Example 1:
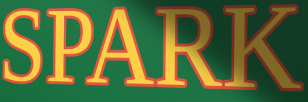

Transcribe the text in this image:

SPARK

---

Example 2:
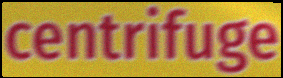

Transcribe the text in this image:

centrifuge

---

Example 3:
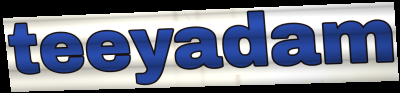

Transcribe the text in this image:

teeyadam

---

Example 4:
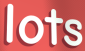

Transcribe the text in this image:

lots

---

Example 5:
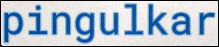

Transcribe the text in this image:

pingulkar